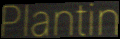
Plantin